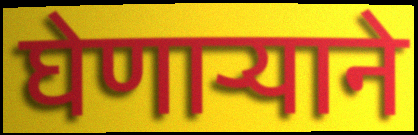
घेणाऱ्याने